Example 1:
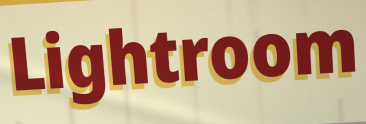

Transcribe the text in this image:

Lightroom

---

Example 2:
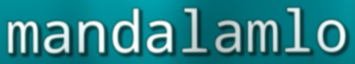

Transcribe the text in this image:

mandalamlo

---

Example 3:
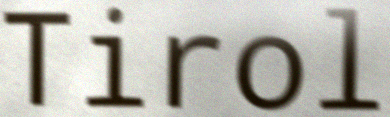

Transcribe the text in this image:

Tirol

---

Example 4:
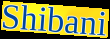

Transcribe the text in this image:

Shibani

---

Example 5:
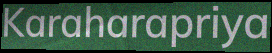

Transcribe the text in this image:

Karaharapriya